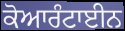
ਕੋਆਰੰਟਾਈਨ